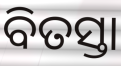
ବିତସ୍ତା